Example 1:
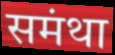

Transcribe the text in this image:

समंथा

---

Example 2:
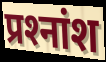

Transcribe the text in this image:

प्रश्‍नांश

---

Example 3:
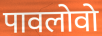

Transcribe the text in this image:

पावलोवो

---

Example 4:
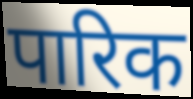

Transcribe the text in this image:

पारिक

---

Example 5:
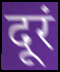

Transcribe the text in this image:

दूरं